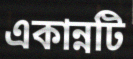
একান্নটি